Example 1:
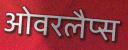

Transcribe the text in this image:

ओवरलैप्स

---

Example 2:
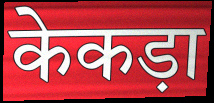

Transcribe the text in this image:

केकड़ा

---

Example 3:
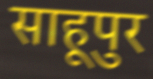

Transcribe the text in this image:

साहूपुर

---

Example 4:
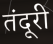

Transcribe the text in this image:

तंदूरी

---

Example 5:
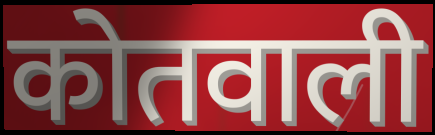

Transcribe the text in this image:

कोतवाली